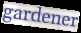
gardener